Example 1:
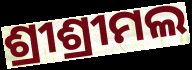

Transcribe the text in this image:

ଶ୍ରୀଶ୍ରୀମଲ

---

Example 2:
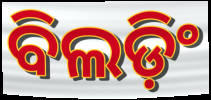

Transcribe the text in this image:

ବିଲଡ଼ିଂ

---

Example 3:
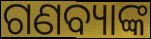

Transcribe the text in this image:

ଗଣବ୍ୟାଙ୍କ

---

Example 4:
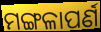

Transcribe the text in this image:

ମଙ୍ଗଳାପର୍ଣ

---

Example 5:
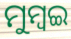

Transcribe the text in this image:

ମୁମ୍ବଇ